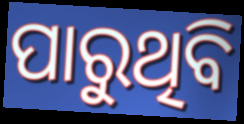
ପାରୁଥିବି